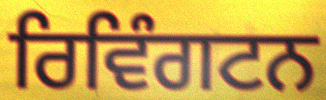
ਰਿਵਿੰਗਟਨ